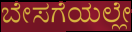
ಬೇಸಗೆಯಲ್ಲೇ